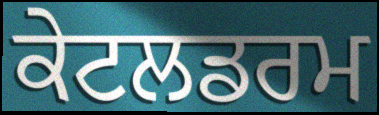
ਕੇਟਲਡਰਮ